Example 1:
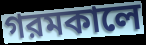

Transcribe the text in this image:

গরমকালে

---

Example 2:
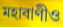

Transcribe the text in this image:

মহাবাণীও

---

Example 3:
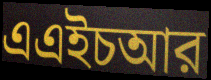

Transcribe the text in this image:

এএইচআর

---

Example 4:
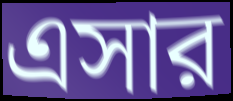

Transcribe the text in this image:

এসার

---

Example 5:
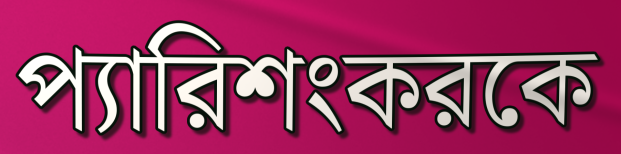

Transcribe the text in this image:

প্যারিশংকরকে